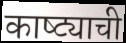
काष्ट्याची